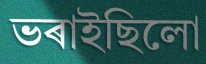
ভৰাইছিলো